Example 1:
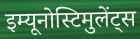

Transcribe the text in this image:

इम्यूनोस्टिमुलेंट्स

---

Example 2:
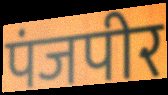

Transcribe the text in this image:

पंजपीर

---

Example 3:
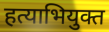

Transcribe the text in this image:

हत्याभियुक्त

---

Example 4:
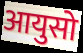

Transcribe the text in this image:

आयुसो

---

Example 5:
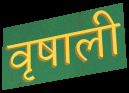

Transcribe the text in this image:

वृषाली